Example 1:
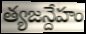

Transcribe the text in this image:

త్యజన్దేహం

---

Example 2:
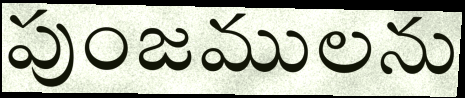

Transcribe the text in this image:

పుంజములను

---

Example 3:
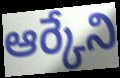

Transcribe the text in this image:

ఆర్కేని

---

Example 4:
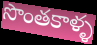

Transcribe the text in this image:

సొంతకాళ్ళ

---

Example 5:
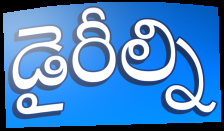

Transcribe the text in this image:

డైరీల్ని